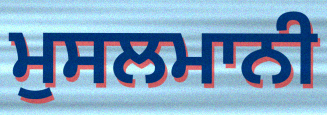
ਮੁਸਲਮਾਨੀ